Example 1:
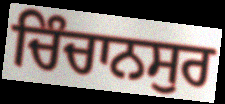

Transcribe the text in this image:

ਚਿੰਚਾਨਸੁਰ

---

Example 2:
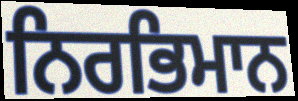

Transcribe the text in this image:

ਨਿਰਭਿਮਾਨ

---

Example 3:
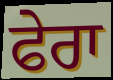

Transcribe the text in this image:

ਫੇਰਾ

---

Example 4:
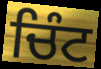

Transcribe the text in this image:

ਚਿੰਟ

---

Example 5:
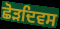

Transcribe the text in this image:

ਛੋੜਦਿਵਸ